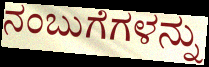
ನಂಬುಗೆಗಳನ್ನು